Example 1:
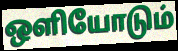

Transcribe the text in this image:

ஒளியோடும்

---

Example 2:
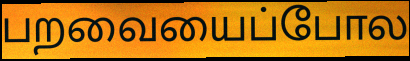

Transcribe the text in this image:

பறவையைப்போல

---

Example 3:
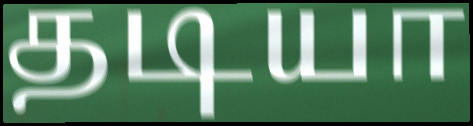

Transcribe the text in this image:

தடியா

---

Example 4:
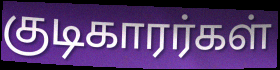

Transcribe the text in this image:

குடிகாரர்கள்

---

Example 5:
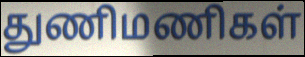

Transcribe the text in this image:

துணிமணிகள்